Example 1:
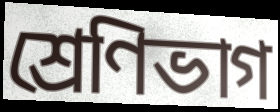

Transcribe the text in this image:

শ্রেণিভাগ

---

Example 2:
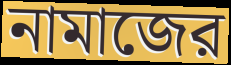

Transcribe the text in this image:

নামাজের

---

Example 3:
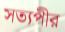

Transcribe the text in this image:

সত্যপীর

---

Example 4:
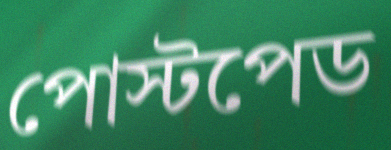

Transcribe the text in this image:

পোস্টপেড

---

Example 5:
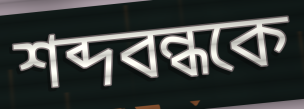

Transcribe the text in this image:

শব্দবন্ধকে